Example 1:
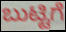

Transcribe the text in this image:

ಬುಟ್ಟಿಗೆ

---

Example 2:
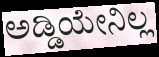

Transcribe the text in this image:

ಅಡ್ಡಿಯೇನಿಲ್ಲ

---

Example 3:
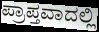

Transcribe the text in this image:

ಪ್ರಾಪ್ತವಾದಲ್ಲಿ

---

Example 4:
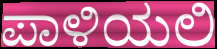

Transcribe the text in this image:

ಪಾಳಿಯಲಿ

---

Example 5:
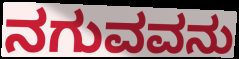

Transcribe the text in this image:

ನಗುವವನು